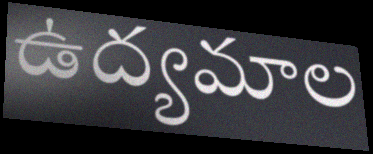
ఉద్యమాల